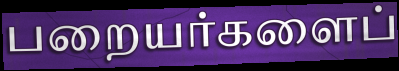
பறையர்களைப்